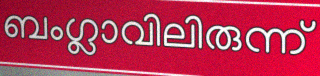
ബംഗ്ലാവിലിരുന്ന്